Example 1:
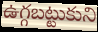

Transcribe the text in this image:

ఉగ్గబట్టుకుని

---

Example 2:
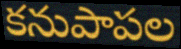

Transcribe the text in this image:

కనుపాపల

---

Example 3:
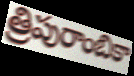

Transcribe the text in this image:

త్రిపురాంబికా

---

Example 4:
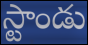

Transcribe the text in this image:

స్టాండు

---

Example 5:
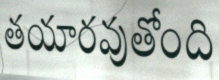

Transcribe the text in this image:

తయారవుతోంది